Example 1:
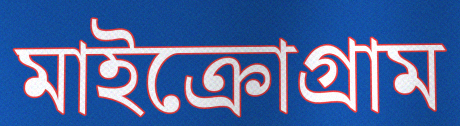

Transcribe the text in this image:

মাইক্রোগ্রাম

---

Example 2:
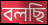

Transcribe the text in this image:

বলছি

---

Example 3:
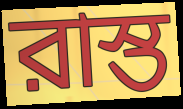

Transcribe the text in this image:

রাস্ত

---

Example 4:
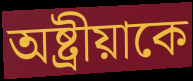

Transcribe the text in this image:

অষ্ট্রীয়াকে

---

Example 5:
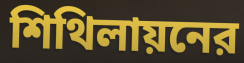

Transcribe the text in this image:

শিথিলায়নের